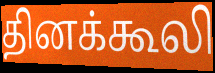
தினக்கூலி